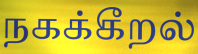
நகக்கீறல்